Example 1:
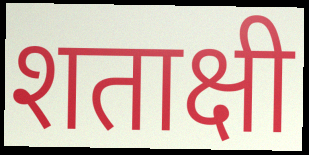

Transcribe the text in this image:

शताक्षी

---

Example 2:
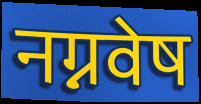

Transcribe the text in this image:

नग्नवेष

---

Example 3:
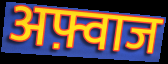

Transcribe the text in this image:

अफ़्वाज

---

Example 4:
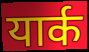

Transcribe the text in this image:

यार्क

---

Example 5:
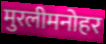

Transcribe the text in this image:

मुरलीमनोहर